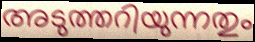
അടുത്തറിയുന്നതും